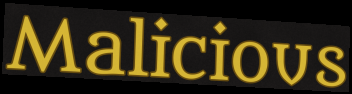
Malicious